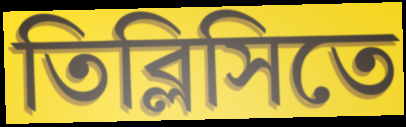
তিব্লিসিতে